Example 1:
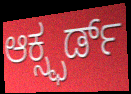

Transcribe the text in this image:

ಆಕ್ಸ್ಫರ್ಡ್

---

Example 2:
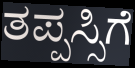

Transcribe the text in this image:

ತಪ್ಪಸ್ಸಿಗೆ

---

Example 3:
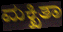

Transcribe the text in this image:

ಮಕ್ಖಿತಾ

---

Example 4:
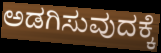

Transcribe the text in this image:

ಅಡಗಿಸುವುದಕ್ಕೆ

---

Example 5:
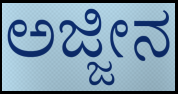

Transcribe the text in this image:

ಅಜ್ಜೀನ